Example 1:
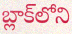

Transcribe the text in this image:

బ్లాక్‌లోని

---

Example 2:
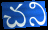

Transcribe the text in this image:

చని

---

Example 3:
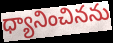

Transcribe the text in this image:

ధ్యానించినను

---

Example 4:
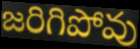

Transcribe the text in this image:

జరిగిపోవు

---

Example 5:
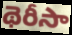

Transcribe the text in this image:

థెరీసా